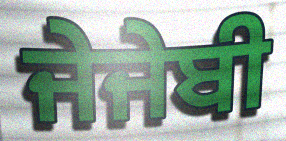
ਜੇਜੇਬੀ